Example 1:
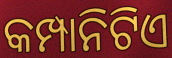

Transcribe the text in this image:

କମ୍ପାନିଟିଏ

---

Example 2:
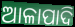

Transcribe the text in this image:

ଆଳାପାଦି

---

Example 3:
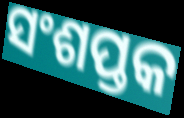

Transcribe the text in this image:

ସଂଶପ୍ତକ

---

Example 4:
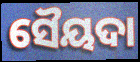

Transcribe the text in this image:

ସୈୟଦା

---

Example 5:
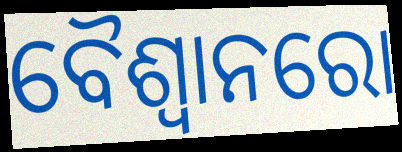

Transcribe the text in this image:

ବୈଶ୍ୱାନରୋ